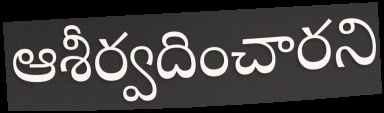
ఆశీర్వదించారని